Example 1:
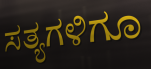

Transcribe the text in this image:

ಸತ್ಯಗಳಿಗೂ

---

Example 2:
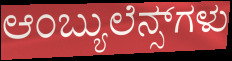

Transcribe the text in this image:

ಆಂಬ್ಯುಲೆನ್ಸ್‌ಗಳು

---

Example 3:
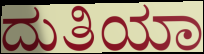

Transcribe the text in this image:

ದುತಿಯಾ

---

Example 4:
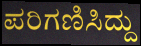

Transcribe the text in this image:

ಪರಿಗಣಿಸಿದ್ದು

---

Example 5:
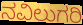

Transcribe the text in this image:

ನವಿಲುಗರಿ